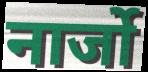
नार्जो